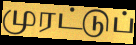
முரட்டுப்